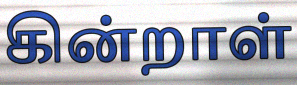
கின்றாள்